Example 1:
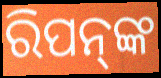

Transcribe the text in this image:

ରିପନ୍‍ଙ୍କ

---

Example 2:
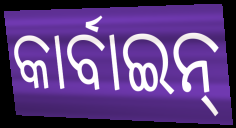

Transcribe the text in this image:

କାର୍ବାଇନ୍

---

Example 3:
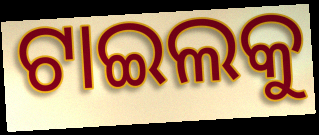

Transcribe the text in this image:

ଟାଇଲକୁ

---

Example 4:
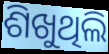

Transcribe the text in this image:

ଶିଖୁଥିଲି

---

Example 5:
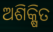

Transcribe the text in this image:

ଅଶିକ୍ଷିତ